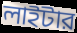
লাইটার